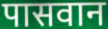
पासवान